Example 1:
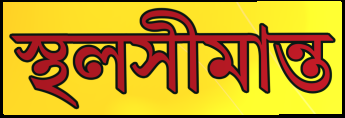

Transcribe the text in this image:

স্থলসীমান্ত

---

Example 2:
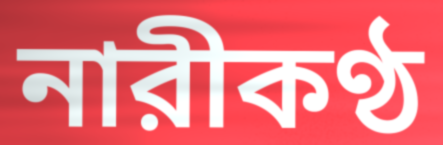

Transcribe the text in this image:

নারীকণ্ঠ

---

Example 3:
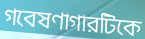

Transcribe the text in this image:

গবেষণাগারটিকে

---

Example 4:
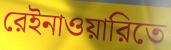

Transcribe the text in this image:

রেইনাওয়ারিতে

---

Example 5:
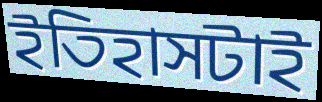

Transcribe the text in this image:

ইতিহাসটাই